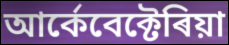
আৰ্কেবেক্টেৰিয়া